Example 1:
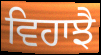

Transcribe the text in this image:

ਵਿਹਾਝੈ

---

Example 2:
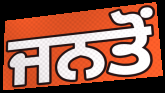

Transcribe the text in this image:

ਜਨਤੋਂ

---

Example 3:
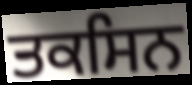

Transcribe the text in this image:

ਤਕਸਿਨ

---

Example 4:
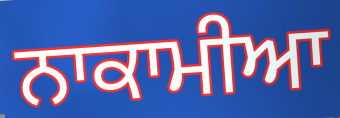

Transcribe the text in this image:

ਨਾਕਾਮੀਆ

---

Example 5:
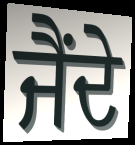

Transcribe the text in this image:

ਜੈਂਦੇ